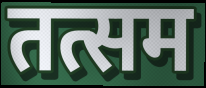
तत्सम